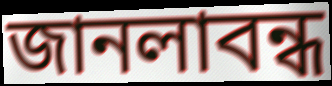
জানলাবন্ধ